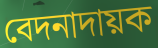
বেদনাদায়ক